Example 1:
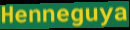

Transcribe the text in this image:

Henneguya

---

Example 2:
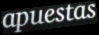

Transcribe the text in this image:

apuestas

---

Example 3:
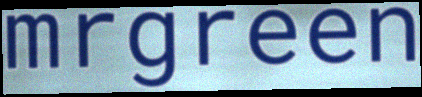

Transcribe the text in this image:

mrgreen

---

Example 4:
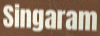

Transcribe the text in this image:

Singaram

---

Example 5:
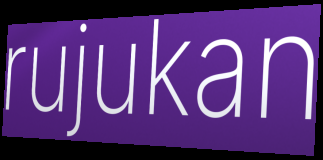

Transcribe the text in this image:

rujukan